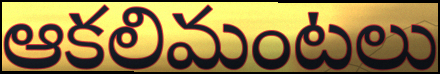
ఆకలిమంటలు